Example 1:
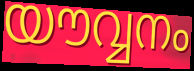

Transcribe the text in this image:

യൗവ്വനം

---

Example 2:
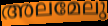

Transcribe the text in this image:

അലമേലു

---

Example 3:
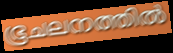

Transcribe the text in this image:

ഭൂചലനത്തിൽ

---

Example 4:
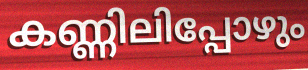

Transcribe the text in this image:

കണ്ണിലിപ്പോഴും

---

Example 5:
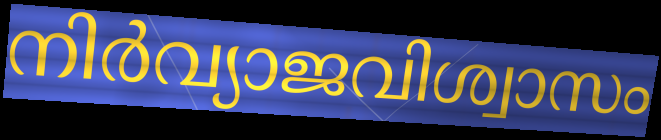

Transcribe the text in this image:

നിർവ്യാജവിശ്വാസം